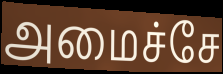
அமைச்சே